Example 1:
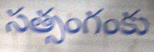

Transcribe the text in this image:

సత్సంగంకు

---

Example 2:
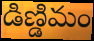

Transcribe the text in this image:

డిణ్డిమం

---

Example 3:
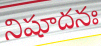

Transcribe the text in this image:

నిషూదనః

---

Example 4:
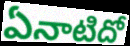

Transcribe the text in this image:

ఏనాటిదో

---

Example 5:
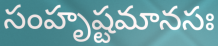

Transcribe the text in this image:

సంహృష్టమానసః